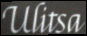
Ulitsa